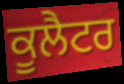
ਕੂਲੈਟਰ